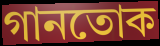
গানতোক